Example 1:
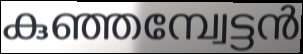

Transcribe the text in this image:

കുഞ്ഞമ്പ്വേട്ടൻ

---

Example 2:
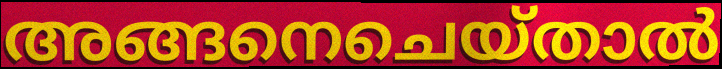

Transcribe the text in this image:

അങ്ങനെചെയ്താൽ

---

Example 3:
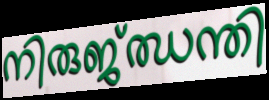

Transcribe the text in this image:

നിരുജ്ഝന്തി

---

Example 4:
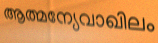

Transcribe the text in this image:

ആത്മന്യേവാഖിലം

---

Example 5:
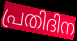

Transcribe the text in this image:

പ്രതിദിന